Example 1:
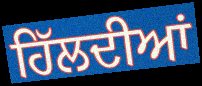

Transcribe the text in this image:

ਹਿੱਲਦੀਆਂ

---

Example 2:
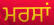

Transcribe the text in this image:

ਮਰਸਾਂ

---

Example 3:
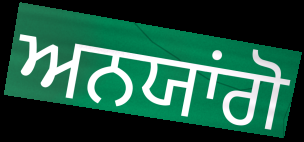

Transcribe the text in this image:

ਅਨਯਾਂਗੋ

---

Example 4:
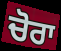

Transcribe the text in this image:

ਚੋਰਾ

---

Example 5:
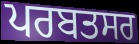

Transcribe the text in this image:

ਪਰਬਤਸਰ